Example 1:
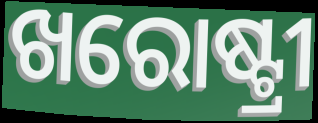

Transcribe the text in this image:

ଖରୋଷ୍ଟ୍ରୀ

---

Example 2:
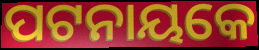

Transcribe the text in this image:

ପଟନାୟକେ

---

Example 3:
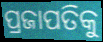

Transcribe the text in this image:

ପ୍ରଜାପତିକୁ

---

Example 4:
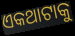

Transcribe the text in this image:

ଏକଥାଟାକୁ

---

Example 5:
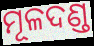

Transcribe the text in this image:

ମୂଳଦଣ୍ଡ